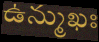
ఉన్ముఖః